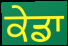
ਕੇਡਾ